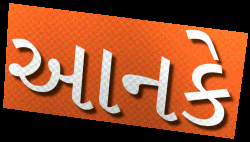
આનકે